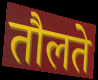
तौलते